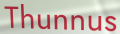
Thunnus